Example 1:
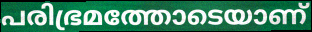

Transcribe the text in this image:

പരിഭ്രമത്തോടെയാണ്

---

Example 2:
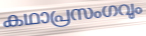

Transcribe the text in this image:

കഥാപ്രസംഗവും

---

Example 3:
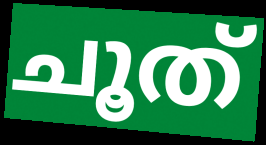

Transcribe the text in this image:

ചൂത്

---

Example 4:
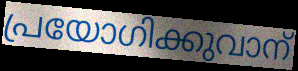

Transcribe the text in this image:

പ്രയോഗിക്കുവാന്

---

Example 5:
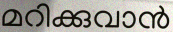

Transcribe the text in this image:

മറിക്കുവാൻ